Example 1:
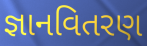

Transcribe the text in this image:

જ્ઞાનવિતરણ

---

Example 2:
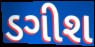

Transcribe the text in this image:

ડગીશ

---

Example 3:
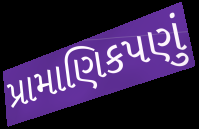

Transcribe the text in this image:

પ્રામાણિકપણું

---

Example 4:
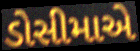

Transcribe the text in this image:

ડોસીમાએ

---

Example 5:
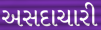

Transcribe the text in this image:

અસદાચારી